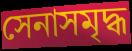
সেনাসমৃদ্ধ